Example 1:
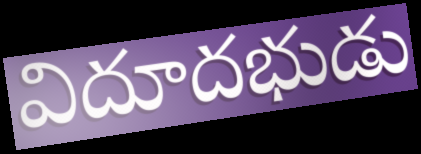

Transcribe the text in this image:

విదూదభుడు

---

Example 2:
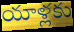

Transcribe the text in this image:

యాళ్లకు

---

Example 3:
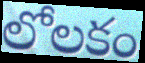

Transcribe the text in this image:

లోలకం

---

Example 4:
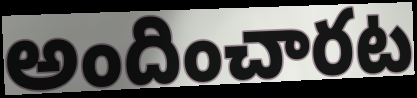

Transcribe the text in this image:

అందించారట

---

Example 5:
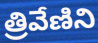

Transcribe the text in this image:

త్రివేణిని